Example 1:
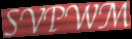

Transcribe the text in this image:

SVPWM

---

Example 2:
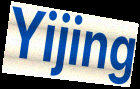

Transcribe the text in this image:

Yijing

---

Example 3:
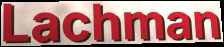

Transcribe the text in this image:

Lachman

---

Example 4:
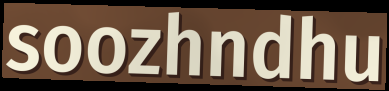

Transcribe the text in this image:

soozhndhu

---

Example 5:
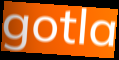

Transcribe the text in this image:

gotla